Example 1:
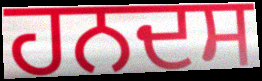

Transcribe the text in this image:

ਹਨਦਸ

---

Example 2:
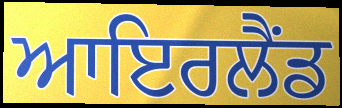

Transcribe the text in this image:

ਆਇਰਲੈਂਡ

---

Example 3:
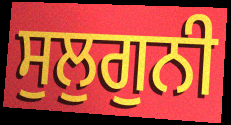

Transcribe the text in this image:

ਸੁਲੁਗੁਨੀ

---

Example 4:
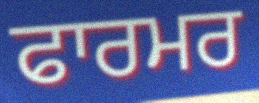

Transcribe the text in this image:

ਫਾਰਮਰ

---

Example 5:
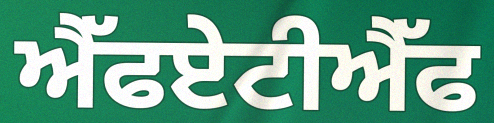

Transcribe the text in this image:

ਐੱਫਏਟੀਐੱਫ